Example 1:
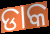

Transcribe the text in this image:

ଡାକ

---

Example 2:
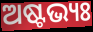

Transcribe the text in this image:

ଅଷ୍ଟଭ୍ୟଃ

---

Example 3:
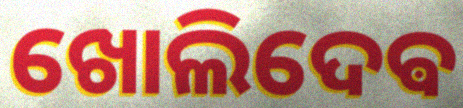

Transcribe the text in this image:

ଖୋଲିଦେଵ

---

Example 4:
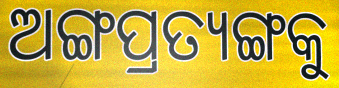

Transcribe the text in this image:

ଅଙ୍ଗପ୍ରତ୍ୟଙ୍ଗକୁ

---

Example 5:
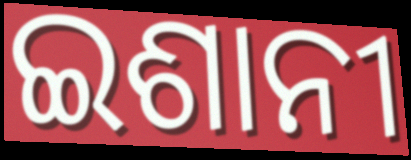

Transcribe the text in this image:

ଇଶାନୀ